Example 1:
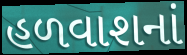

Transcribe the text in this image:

હળવાશનાં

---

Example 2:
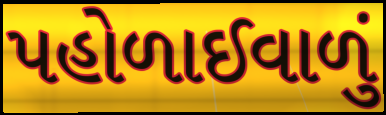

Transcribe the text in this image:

પહોળાઈવાળું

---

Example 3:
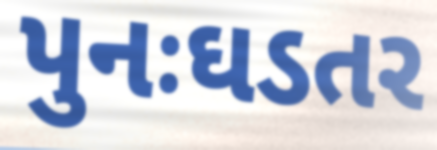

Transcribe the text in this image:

પુનઃઘડતર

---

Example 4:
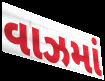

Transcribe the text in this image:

વાઝમાં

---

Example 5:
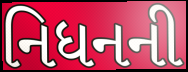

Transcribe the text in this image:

નિધનની